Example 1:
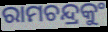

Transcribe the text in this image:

ରାମଚନ୍ଦ୍ରକୁଂ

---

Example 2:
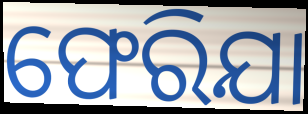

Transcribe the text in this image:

ଫେରିଯା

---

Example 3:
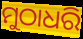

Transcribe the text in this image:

ମୁଠାଧରି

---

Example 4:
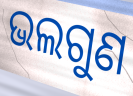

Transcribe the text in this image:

ଭଲଗୁଣ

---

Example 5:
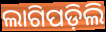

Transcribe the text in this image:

ଲାଗିପଡ଼ିଲି